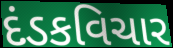
દંડકવિચાર